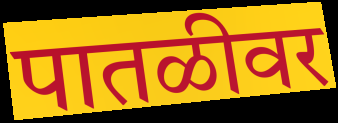
पातळीवर